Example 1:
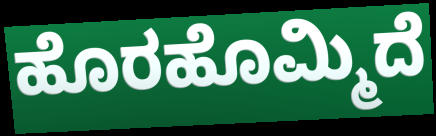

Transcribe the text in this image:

ಹೊರಹೊಮ್ಮಿದೆ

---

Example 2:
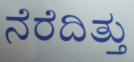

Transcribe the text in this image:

ನೆರೆದಿತ್ತು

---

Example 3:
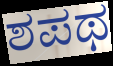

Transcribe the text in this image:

ಶಪಥ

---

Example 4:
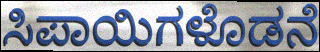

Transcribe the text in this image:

ಸಿಪಾಯಿಗಳೊಡನೆ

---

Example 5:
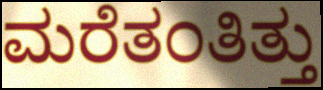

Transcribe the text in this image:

ಮರೆತಂತಿತ್ತು